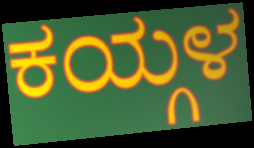
ಕಯ್ಗಳ